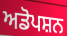
ਅਡੋਪਸ਼ਨ